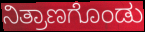
ನಿತ್ರಾಣಗೊಂಡು